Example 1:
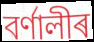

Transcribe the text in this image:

বৰ্ণালীৰ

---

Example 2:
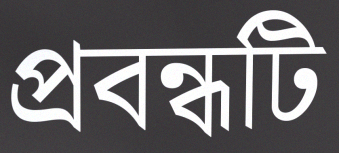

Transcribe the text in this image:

প্ৰবন্ধটি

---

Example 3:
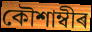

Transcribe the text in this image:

কৌশাম্বীৰ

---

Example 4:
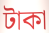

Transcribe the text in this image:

টাকা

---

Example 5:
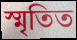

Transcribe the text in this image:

স্মৃতিত